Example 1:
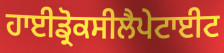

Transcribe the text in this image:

ਹਾਈਡ੍ਰੋਕਸੀਲੈਪੇਟਾਈਟ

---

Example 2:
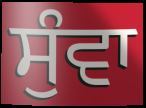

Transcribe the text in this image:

ਸੁੰਵਾ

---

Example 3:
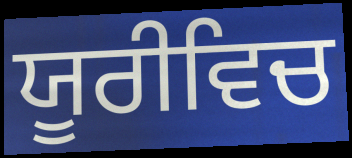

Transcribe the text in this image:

ਯੂਰੀਵਿਚ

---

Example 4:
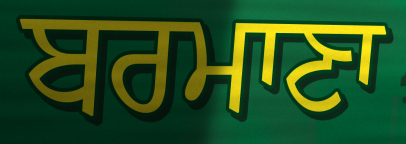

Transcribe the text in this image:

ਬਰਮਾਣਾ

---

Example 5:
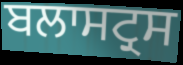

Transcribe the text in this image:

ਬਲਾਸਟ੍ਰਸ